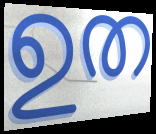
ഉത